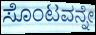
ಸೊಂಟವನ್ನೇ